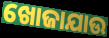
ଖୋଜାଯାଉ